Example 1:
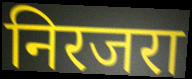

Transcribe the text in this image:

निरजरा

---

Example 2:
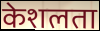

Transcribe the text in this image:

केशलता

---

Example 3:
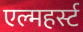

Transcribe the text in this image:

एल्महर्स्ट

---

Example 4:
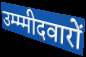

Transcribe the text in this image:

उम्म्मीदवारों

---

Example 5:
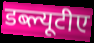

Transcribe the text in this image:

डब्ल्यूटीए